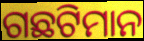
ଗଛଟିମାନ